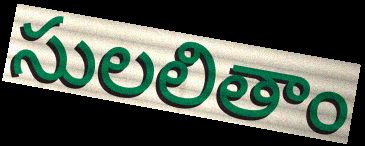
సులలితాం